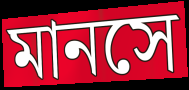
মানসে